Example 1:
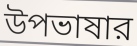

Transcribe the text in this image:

উপভাষার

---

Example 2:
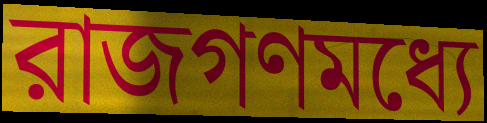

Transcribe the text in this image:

রাজগণমধ্যে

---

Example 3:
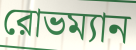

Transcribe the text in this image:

রোভম্যান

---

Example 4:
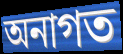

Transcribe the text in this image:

অনাগত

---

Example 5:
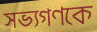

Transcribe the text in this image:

সভ্যগণকে